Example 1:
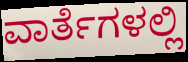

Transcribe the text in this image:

ವಾರ್ತೆಗಳಲ್ಲಿ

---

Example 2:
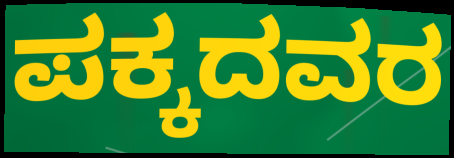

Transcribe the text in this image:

ಪಕ್ಕದವರ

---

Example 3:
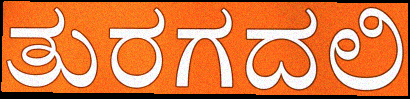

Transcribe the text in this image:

ತುರಗದಲಿ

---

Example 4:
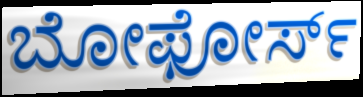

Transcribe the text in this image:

ಬೋಫೋರ್ಸ್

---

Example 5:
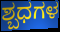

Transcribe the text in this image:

ಶ್ಬಧಗಳ